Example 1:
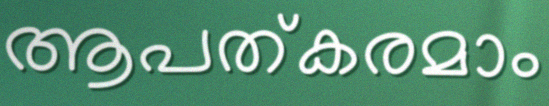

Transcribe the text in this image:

ആപത്കരമാം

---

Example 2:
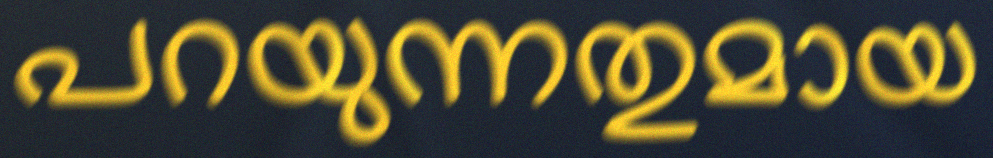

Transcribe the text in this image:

പറയുന്നതുമായ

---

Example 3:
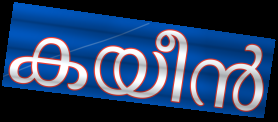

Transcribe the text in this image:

കയീൻ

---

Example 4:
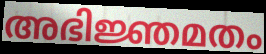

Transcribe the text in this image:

അഭിജ്ഞമതം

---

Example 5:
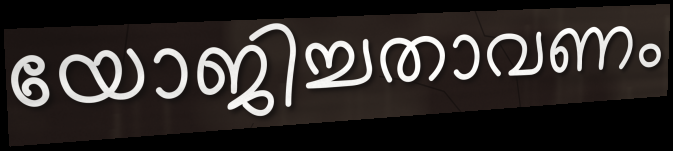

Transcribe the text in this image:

യോജിച്ചതാവണം